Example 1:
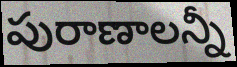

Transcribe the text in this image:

పురాణాలన్నీ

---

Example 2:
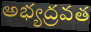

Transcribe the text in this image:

అభ్యద్రవత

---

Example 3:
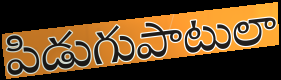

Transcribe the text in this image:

పిడుగుపాటులా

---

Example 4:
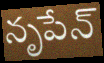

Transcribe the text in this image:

నృపేన్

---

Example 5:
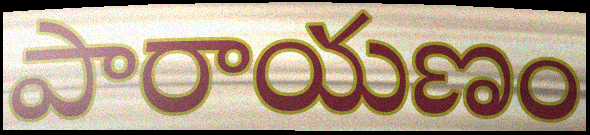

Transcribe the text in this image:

పారాయణం